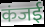
कंजई